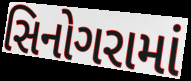
સિનોગરામાં